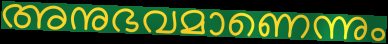
അനുഭവമാണെന്നും